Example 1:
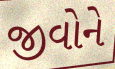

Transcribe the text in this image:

જીવોને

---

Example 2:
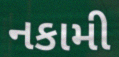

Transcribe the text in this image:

નકામી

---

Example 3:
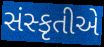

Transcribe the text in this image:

સંસ્કૃતીએ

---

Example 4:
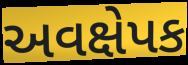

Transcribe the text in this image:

અવક્ષેપક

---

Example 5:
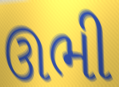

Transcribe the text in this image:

ઊભી